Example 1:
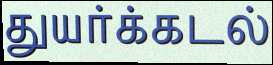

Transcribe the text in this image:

துயர்க்கடல்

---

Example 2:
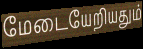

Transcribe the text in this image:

மேடையேறியதும்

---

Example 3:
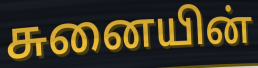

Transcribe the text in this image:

சுனையின்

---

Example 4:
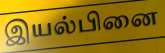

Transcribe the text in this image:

இயல்பினை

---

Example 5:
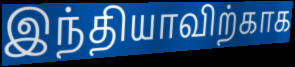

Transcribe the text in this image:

இந்தியாவிற்காக